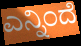
ಎನ್ನಿಂದೆ